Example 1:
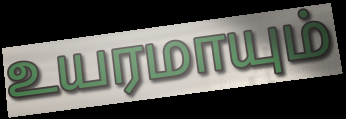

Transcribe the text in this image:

உயரமாயும்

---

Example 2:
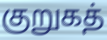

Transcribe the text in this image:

குறுகத்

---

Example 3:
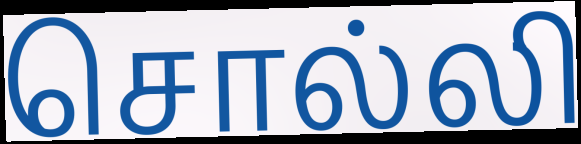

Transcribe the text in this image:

சொல்லி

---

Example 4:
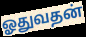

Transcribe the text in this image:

ஓதுவதன்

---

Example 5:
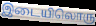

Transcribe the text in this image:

இடையிலொரு